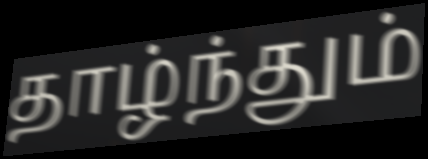
தாழ்ந்தும்